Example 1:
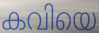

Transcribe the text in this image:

കവിയെ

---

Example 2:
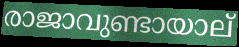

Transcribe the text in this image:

രാജാവുണ്ടായാല്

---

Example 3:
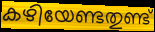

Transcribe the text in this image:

കഴിയേണ്ടതുണ്ട്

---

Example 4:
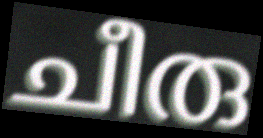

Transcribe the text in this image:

ചീരു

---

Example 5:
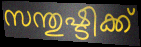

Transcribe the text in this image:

സന്തുഷ്ടിക്ക്